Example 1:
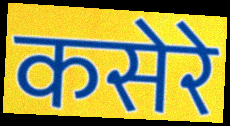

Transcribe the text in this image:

कसेरे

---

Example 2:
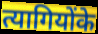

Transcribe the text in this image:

त्यागियोंके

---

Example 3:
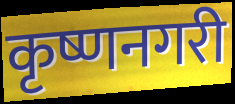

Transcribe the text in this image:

कृष्णनगरी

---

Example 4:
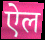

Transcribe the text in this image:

ऐल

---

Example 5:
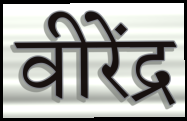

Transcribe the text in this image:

वीरेंद्र